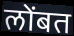
लोंबत